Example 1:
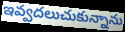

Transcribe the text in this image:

ఇవ్వదలుచుకున్నాను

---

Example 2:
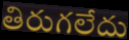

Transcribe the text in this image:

తిరుగలేదు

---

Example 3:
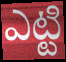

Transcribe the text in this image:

ఎట్టి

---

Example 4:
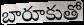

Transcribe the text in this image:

బారూకుతో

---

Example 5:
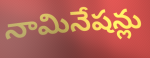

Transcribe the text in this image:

నామినేషన్లు